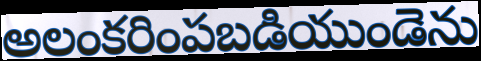
అలంకరింపబడియుండెను